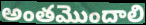
అంతమొందాలి